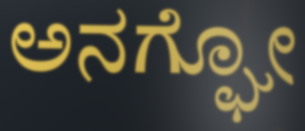
ಅನಗ್ಘೋ